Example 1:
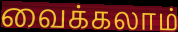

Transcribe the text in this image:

வைக்கலாம்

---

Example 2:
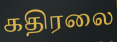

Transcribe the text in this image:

கதிரலை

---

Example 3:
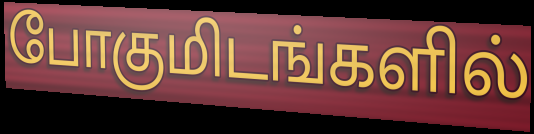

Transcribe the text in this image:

போகுமிடங்களில்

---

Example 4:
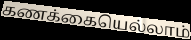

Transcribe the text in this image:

கணக்கையெல்லாம்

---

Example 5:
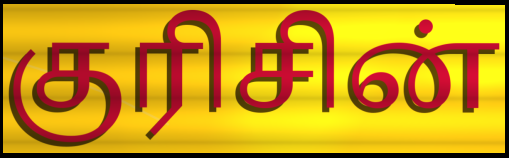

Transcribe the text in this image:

குரிசின்